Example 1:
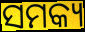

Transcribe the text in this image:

ସମକ୍ୟ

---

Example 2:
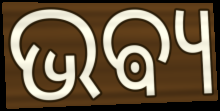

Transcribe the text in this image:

ଭଵ୍ୟ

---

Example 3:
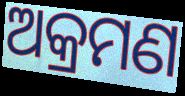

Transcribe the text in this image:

ଅକ୍ରମଣ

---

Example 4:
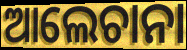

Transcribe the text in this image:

ଆଲେଚାନା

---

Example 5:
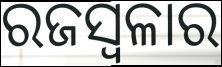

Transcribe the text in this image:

ରଜସ୍ୱଳାର